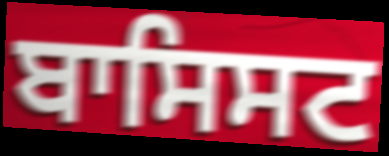
ਬਾਸਿਸਟ